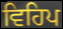
ਵਿਹਿਪ